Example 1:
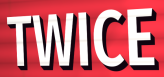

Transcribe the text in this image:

TWICE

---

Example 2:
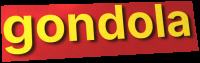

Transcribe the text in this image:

gondola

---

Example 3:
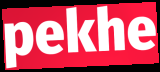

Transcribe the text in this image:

pekhe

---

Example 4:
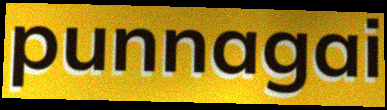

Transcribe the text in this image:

punnagai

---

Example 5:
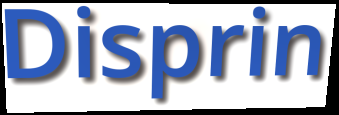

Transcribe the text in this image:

Disprin